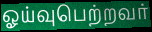
ஓய்வுபெற்றவர்